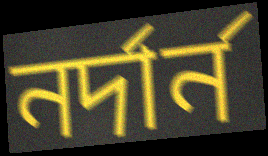
নর্দার্ন